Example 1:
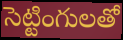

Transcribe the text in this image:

సెట్టింగులతో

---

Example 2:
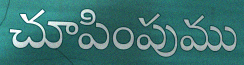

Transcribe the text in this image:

చూపింపుము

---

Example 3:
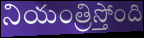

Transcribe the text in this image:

నియంత్రిస్తోంది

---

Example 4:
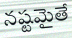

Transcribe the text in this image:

నష్టమైతే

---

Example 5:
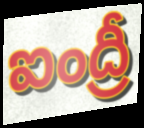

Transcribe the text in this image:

ఐంద్రీ